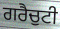
ਗਰੈਚੁਟੀ